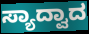
ಸ್ಯಾದ್ವಾದ